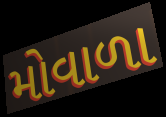
મોવાળા